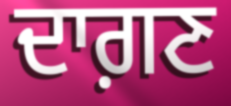
ਦਾਗ਼ਣ